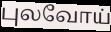
புலவோய்